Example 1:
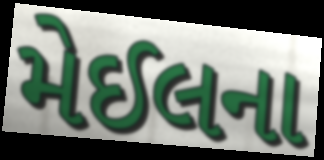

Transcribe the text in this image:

મેઈલના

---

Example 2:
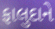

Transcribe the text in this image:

ફાલુદાને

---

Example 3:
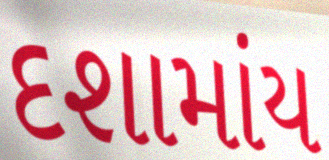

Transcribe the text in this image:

દશામાંય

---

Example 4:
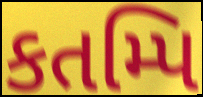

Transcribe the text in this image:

કતમ્પિ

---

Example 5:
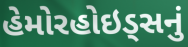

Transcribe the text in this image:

હેમોરહોઇડ્સનું